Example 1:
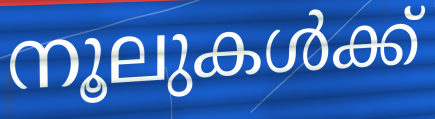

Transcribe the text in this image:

നൂലുകൾക്ക്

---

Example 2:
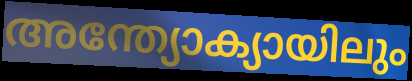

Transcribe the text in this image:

അന്ത്യോക്യായിലും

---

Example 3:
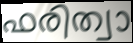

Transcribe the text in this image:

ഫരിത്വാ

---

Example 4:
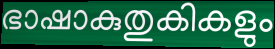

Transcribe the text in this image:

ഭാഷാകുതുകികളും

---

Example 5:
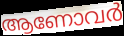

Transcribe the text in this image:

ആണോവർ